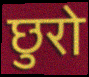
छुरो